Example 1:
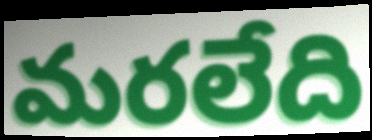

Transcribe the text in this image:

మరలేది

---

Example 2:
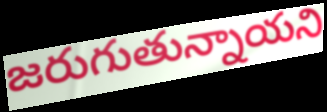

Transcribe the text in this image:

జరుగుతున్నాయని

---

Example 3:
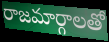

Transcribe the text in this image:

రాజమార్గాలతో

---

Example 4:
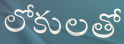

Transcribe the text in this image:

లోకులతో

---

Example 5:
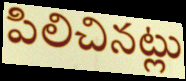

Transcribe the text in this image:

పిలిచినట్లు